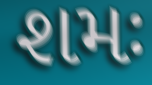
શમઃ